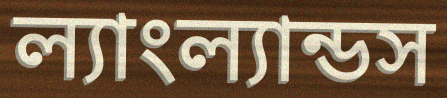
ল্যাংল্যান্ডস